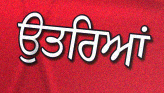
ਉਤਰਿਆਂ